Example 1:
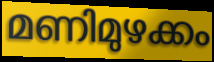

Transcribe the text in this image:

മണിമുഴക്കം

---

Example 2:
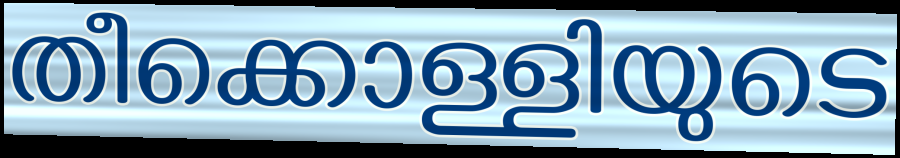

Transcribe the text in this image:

തീക്കൊള്ളിയുടെ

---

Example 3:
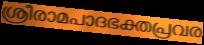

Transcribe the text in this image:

ശ്രീരാമപാദഭക്തപ്രവര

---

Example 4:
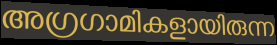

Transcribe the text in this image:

അഗ്രഗാമികളായിരുന്ന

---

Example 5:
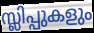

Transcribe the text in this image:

സ്ലിപ്പുകളും